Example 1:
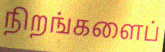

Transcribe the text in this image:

நிறங்களைப்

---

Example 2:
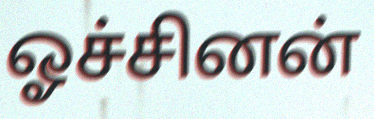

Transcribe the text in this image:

ஓச்சினன்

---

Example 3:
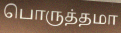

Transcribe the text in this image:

பொருத்தமா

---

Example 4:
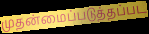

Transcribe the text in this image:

முதன்மைப்படுத்தப்பட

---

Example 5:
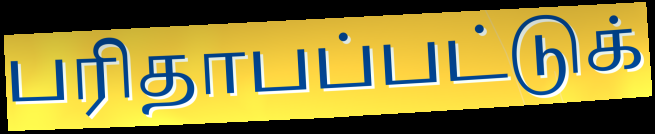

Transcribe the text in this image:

பரிதாபப்பட்டுக்